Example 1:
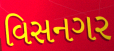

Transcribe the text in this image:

વિસનગર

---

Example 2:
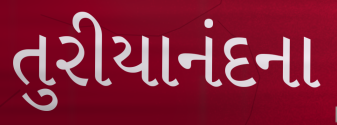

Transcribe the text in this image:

તુરીયાનંદના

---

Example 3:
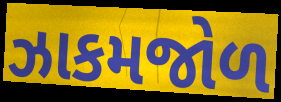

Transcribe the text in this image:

ઝાકમજોળ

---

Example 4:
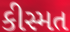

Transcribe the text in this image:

કીસ્મત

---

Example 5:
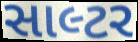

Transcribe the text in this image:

સાલ્ટર